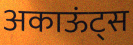
अकाऊंट्स